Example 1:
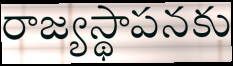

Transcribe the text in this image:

రాజ్యస్థాపనకు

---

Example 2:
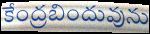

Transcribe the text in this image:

కేంద్రబిందువును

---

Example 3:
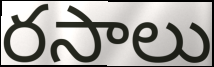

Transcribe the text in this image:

రసాలు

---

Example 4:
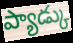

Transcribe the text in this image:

ప్యాడ్కు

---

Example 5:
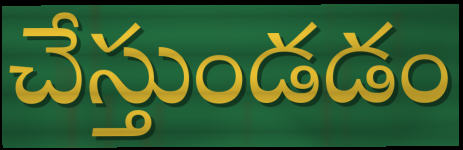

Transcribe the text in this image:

చేస్తుండడం